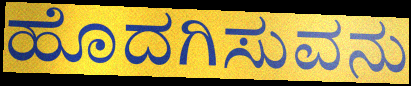
ಹೊದಗಿಸುವನು